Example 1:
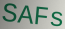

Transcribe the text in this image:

SAFs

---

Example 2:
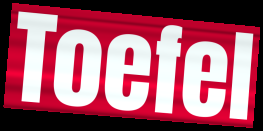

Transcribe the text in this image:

Toefel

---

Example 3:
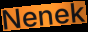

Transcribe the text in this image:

Nenek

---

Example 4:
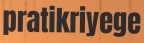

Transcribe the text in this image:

pratikriyege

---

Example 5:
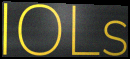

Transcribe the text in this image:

IOLs